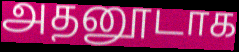
அதனூடாக